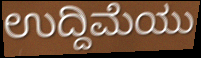
ಉದ್ದಿಮೆಯು